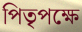
পিতৃপক্ষে